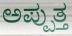
ಅಪ್ಪುತ್ತ